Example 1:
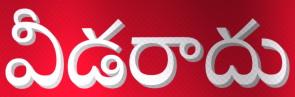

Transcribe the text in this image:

వీడరాదు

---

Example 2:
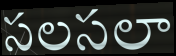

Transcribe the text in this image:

సలసలా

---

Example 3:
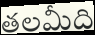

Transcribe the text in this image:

తలమీది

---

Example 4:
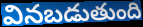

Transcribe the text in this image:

వినబడుతుంది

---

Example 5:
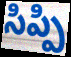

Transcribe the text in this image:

సిప్పి